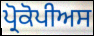
ਪ੍ਰੋਕੋਪੀਅਸ